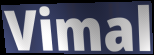
Vimal